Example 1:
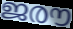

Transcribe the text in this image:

ജരൗ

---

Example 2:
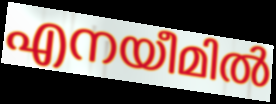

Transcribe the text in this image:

എനയീമിൽ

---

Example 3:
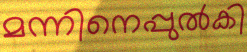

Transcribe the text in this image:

മന്നിനെപ്പുൽകി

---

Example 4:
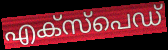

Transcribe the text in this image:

എക്സ്പെഡ്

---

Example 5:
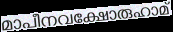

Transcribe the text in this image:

മാപീനവക്ഷോരുഹാമ്